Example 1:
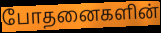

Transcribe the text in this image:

போதனைகளின்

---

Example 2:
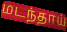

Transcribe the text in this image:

மடந்தாய்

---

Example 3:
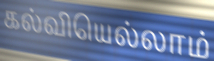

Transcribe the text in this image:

கல்வியெல்லாம்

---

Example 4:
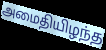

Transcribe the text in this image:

அமைதியிழந்த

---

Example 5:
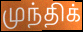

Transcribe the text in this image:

முந்திக்